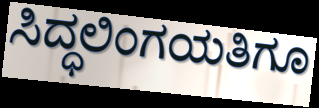
ಸಿದ್ಧಲಿಂಗಯತಿಗೂ